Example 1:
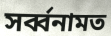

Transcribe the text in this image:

সৰ্ব্বনামত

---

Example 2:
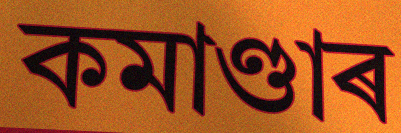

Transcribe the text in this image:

কমাণ্ডাৰ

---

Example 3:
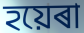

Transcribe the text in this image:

হয়েৰা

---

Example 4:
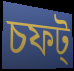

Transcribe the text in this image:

চফট্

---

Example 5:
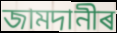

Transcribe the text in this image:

জামদানীৰ